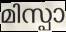
മിസ്പാ